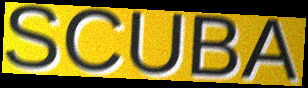
SCUBA